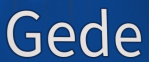
Gede